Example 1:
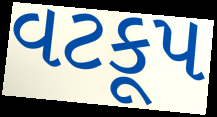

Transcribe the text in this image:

વટકૂપ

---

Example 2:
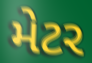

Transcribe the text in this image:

મેટર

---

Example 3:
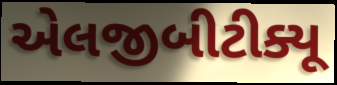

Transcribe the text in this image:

એલજીબીટીક્યૂ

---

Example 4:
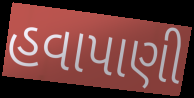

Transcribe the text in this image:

હવાપાણી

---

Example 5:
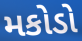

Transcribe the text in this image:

મકોડો